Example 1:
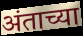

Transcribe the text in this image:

अंताच्या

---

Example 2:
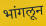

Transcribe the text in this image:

भांगलून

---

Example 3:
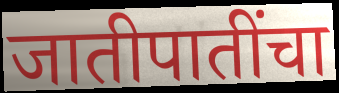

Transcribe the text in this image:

जातीपातींचा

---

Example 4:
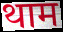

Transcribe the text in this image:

थाम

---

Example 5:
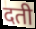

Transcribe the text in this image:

दती